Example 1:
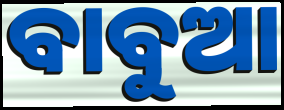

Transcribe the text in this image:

ବାବୁଆ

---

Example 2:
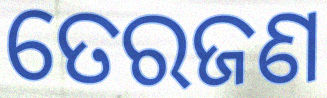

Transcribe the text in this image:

ତେରଜଣ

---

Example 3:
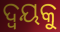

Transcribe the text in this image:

ଦ୍ଵୟକୁ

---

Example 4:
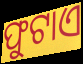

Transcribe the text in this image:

ଫୁଟାଏ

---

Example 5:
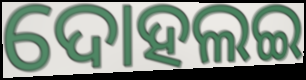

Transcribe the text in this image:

ଦୋହଲଇ